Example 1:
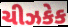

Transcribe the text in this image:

ચીઝકેક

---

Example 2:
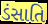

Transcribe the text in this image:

ડંસાતિ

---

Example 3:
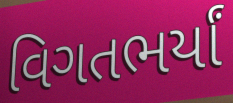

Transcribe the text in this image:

વિગતભર્યાં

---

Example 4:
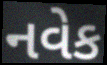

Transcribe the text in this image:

નવેક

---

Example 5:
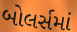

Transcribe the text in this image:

બોલર્સમાં